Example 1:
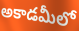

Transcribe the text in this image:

అకాడమీలో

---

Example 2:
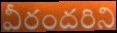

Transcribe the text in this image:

వీరందరిని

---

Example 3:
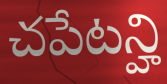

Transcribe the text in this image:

చపేటన్హి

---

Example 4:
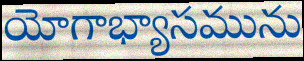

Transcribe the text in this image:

యోగాభ్యాసమును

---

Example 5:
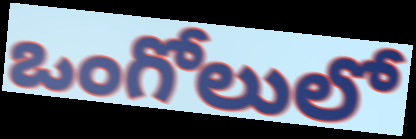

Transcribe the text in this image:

ఒంగోలులో